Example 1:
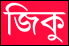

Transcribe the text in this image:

জিকু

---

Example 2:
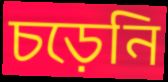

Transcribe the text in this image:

চড়েনি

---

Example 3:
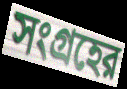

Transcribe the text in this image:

সংগ্রহের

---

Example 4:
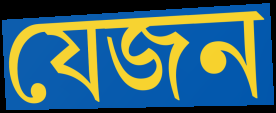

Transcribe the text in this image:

যেজন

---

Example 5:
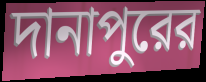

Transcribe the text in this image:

দানাপুরের